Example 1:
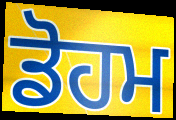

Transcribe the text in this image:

ਡੋਹਮ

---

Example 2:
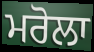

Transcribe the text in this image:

ਮਰੋਲਾ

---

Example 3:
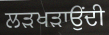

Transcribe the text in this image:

ਲੜਖੜਾਉਂਦੀ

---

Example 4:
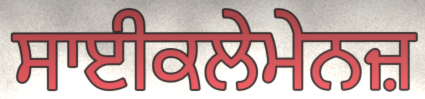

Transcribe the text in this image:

ਸਾਈਕਲੇਮੇਨਜ਼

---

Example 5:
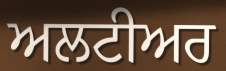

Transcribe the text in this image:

ਅਲਟੀਅਰ